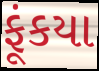
ફૂંકયા